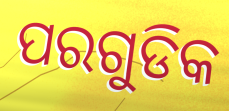
ପରଗୁଡିକ